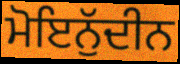
ਮੋਇਨੁੱਦੀਨ